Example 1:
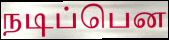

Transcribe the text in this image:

நடிப்பென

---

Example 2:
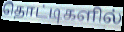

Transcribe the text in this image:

தொட்டிகளில்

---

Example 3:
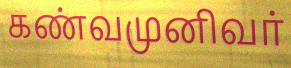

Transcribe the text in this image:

கண்வமுனிவர்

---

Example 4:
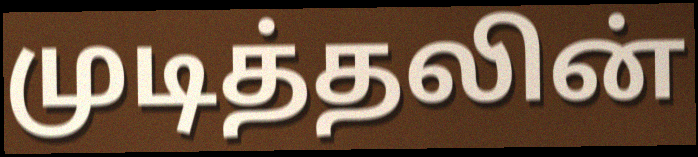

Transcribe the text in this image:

முடித்தலின்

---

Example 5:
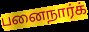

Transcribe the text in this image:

பனைநார்க்